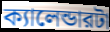
ক্যালেন্ডারটা